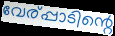
വേര്പ്പാടിന്റെ